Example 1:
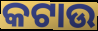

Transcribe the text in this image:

କଟାଉ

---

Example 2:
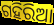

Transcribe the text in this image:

ଗହିରିଆ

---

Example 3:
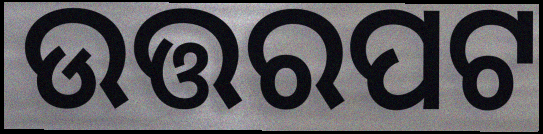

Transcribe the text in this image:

ଉତ୍ତରପଟ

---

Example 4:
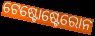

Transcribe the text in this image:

ଟେଷ୍ଟୋଷ୍ଟେରୋନ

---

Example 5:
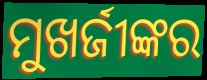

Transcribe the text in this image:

ମୁଖର୍ଜୀଙ୍କର